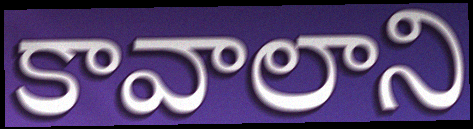
కావాలాని